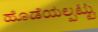
ಹೊಡೆಯಲ್ಪಟ್ಟು